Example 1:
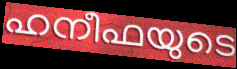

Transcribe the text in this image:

ഹനീഫയുടെ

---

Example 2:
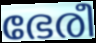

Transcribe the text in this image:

ഭേരീ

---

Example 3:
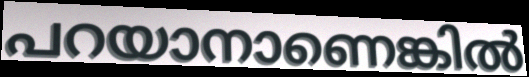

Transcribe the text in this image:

പറയാനാണെങ്കിൽ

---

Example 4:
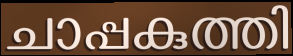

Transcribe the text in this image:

ചാപ്പകുത്തി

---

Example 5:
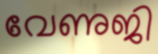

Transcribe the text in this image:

വേണുജി